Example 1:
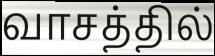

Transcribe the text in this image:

வாசத்தில்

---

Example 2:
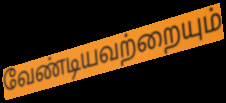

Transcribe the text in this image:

வேண்டியவற்றையும்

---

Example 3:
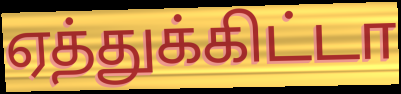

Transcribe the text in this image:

ஏத்துக்கிட்டா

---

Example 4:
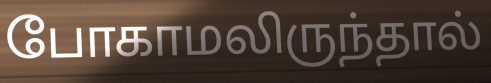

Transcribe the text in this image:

போகாமலிருந்தால்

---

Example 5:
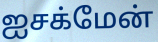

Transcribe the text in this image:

ஐசக்மேன்